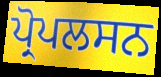
ਪ੍ਰੋਪਲਸਨ